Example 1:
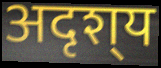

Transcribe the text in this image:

अदृश्य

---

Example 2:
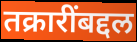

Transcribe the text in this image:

तक्रारींबद्दल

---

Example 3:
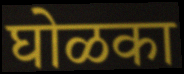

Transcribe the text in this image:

घोळका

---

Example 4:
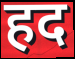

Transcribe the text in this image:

हद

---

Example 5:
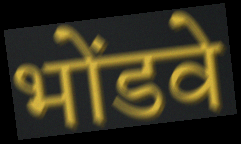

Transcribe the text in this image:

भोंडवे